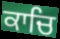
ਕਾਚਿ